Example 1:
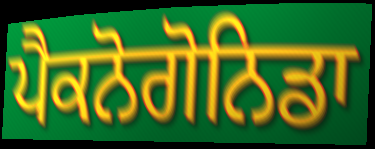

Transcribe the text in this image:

ਪੈਕਨੋਗੋਨਿਡਾ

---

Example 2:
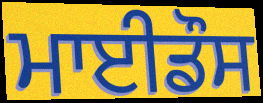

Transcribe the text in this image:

ਮਾਈਡੌਸ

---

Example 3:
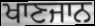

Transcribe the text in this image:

ਖਾਣਜਾਨ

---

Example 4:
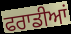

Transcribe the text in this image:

ਫਰਾਡੀਆਂ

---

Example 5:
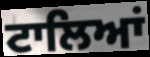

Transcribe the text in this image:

ਟਾਲਿਆਂ